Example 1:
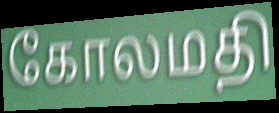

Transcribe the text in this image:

கோலமதி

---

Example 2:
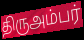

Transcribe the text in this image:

திருஅம்பர்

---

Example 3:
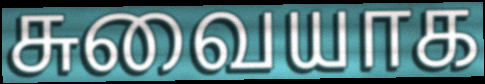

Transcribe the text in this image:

சுவையாக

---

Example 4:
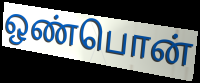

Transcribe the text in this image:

ஒண்பொன்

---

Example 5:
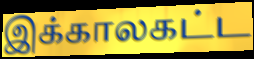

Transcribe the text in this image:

இக்காலகட்ட